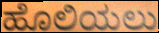
ಹೊಲಿಯಲು